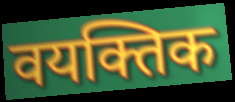
वयक्तिक